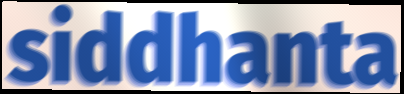
siddhanta